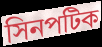
সিনপটিক